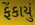
ફેંકાયું